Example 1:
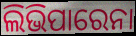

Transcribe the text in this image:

ଲିଭିପାରେନା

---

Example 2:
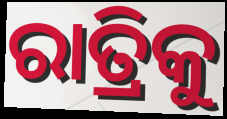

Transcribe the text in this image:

ରାତ୍ରିକୁ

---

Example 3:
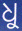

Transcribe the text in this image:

ଧୁ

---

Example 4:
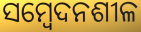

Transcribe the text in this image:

ସମ୍ବେଦନଶୀଳ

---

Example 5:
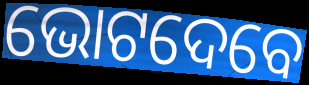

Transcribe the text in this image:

ଭୋଟଦେବେ